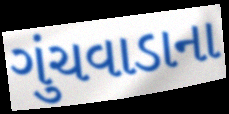
ગુંચવાડાના